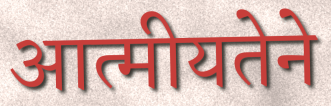
आत्मीयतेने